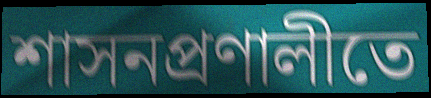
শাসনপ্রণালীতে